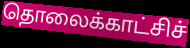
தொலைக்காட்சிச்